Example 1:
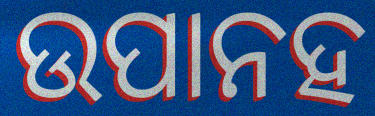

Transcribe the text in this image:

ଉପାନହ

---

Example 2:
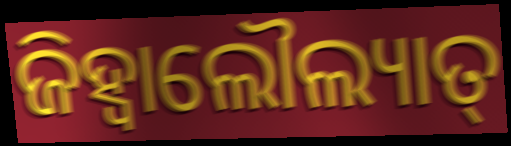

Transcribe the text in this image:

ଜିହ୍ଵାଲୌଲ୍ୟାତ୍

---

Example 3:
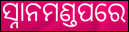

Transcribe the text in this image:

ସ୍ନାନମଣ୍ଡପରେ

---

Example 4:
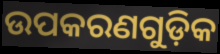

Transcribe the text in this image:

ଉପକରଣଗୁଡ଼ିକ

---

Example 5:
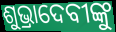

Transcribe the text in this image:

ଶୁଭ୍ରାଦେବୀଙ୍କୁ